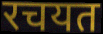
रचयत